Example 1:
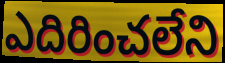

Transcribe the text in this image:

ఎదిరించలేని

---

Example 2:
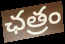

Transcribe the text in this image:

ఛత్రం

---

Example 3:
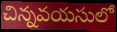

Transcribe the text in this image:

చిన్నవయసులో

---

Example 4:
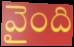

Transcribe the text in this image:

వైంది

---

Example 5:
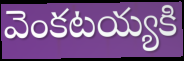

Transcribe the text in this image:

వెంకటయ్యకి